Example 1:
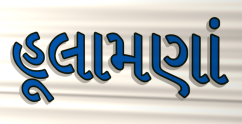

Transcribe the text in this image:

હૂલામણાં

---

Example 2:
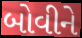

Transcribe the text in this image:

બોવીને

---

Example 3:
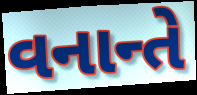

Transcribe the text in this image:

વનાન્તે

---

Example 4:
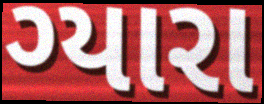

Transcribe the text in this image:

ગ્યારા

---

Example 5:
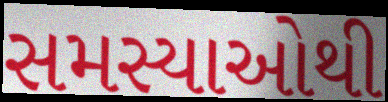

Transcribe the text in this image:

સમસ્યાઓથી